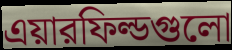
এয়ারফিল্ডগুলো